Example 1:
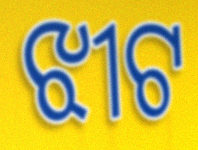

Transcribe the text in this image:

ଝୀଟ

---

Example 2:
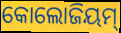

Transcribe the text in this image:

କୋଲୋଜିୟମ୍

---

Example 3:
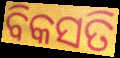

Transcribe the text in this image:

ବିକସତି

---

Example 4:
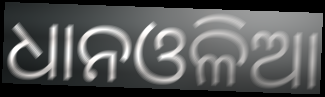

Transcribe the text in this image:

ଧାନଓଳିଆ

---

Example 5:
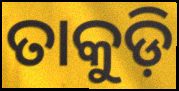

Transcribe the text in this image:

ତାକୁଡ଼ି